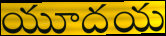
యూదయ